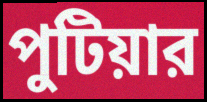
পুটিয়ার